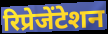
रिप्रेजेंटेशन